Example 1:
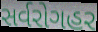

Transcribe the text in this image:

સર્વરોગહર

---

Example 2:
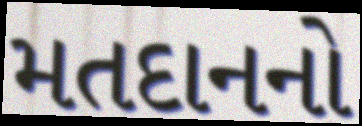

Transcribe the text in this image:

મતદાનનો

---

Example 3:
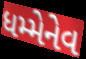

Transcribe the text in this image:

ધમ્મેનેવ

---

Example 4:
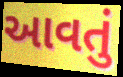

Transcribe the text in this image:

આવતું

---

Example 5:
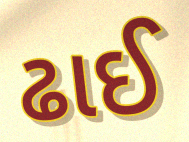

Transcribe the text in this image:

ઢાઈ